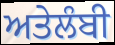
ਅਤੇਲੰਬੀ